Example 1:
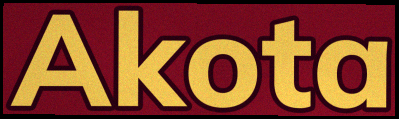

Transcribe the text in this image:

Akota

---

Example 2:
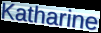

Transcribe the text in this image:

Katharine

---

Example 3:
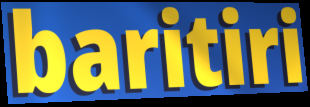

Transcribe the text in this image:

baritiri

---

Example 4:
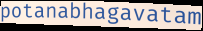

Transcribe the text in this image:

potanabhagavatam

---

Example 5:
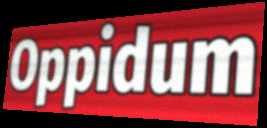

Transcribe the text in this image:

Oppidum